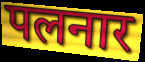
पलनार